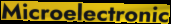
Microelectronic